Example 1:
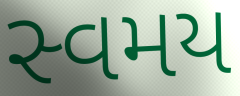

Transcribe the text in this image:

સ્વમય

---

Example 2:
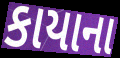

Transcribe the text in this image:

કાયાના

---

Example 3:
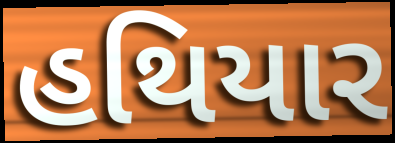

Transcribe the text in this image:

હથિયાર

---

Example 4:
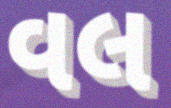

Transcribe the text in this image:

વલ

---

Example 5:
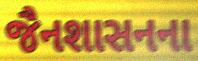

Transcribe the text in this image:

જૈનશાસનના